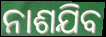
ନାଶଯିବ